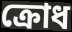
ক্ৰোধ